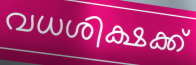
വധശിക്ഷക്ക്